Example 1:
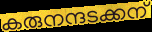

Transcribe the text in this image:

കരുനന്ദടക്കന്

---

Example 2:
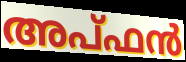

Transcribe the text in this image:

അപ്ഫൻ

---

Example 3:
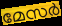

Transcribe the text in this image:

മേസർ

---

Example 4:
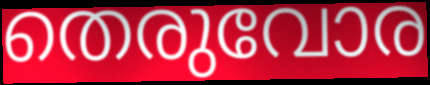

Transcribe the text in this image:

തെരുവോര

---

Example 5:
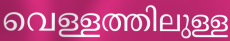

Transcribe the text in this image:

വെള്ളത്തിലുള്ള